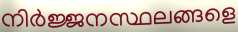
നിർജ്ജനസ്ഥലങ്ങളെ